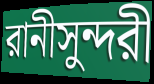
রানীসুন্দরী